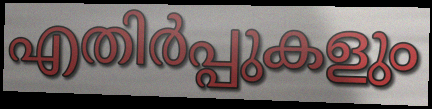
എതിർപ്പുകളും